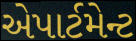
એપાર્ટમેન્ટ